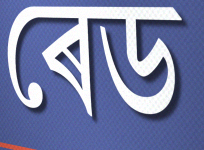
ৰেড